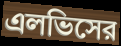
এলভিসের